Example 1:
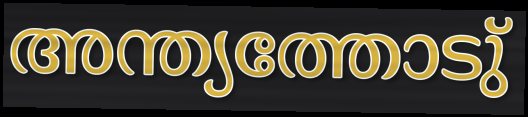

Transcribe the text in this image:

അന്ത്യത്തോടു്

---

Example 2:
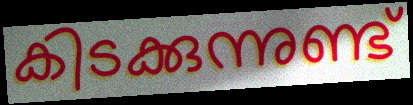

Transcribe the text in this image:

കിടക്കുന്നുണ്ട്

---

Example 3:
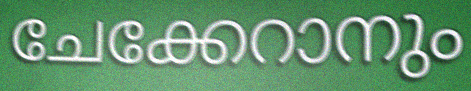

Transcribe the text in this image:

ചേക്കേറാനും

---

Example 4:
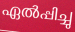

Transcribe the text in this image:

ഏൽപ്പിച്ചു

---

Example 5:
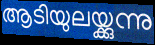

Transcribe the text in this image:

ആടിയുലയ്ക്കുന്നു